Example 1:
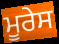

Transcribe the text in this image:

ਮੂਰੇਸ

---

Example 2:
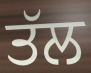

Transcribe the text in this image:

ਤੱਲ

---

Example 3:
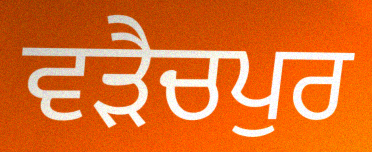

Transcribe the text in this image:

ਵੜੈਚਪੁਰ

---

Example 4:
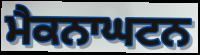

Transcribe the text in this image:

ਮੈਕਨਾਘਟਨ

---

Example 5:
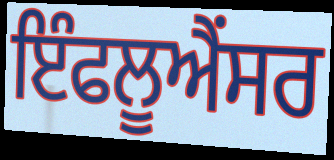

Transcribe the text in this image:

ਇੰਫਲੂਐਂਸਰ